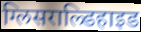
ग्लिसराल्डिहाइड